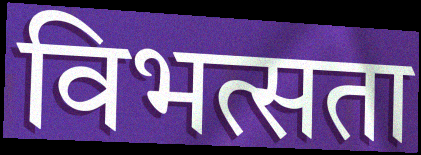
विभत्सता